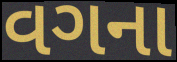
વગના